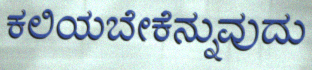
ಕಲಿಯಬೇಕೆನ್ನುವುದು